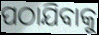
ପଠାଯିବାକୁ